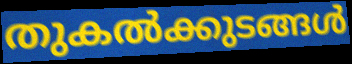
തുകൽക്കുടങ്ങൾ